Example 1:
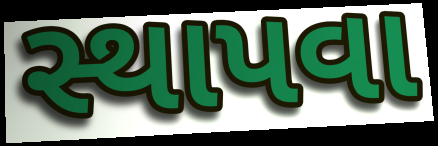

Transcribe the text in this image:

સ્થાપવા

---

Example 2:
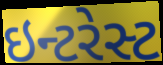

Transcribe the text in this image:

ઇન્ટરેસ્ટ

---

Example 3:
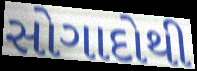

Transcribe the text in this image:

સોગાદોથી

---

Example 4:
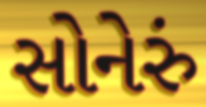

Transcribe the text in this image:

સોનેરું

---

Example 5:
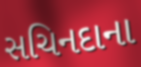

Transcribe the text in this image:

સચિનદાના